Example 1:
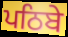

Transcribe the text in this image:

ਪਠਿਬੇ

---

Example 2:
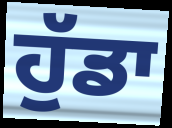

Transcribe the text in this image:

ਹੁੱਡਾ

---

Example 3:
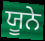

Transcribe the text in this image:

ਯੂਨੇ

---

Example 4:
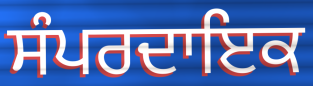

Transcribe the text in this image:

ਸੰਪਰਦਾਇਕ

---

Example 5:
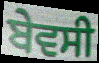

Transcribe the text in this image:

ਬੇਵਸੀ